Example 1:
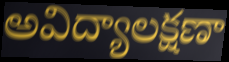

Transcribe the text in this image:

అవిద్యాలక్షణా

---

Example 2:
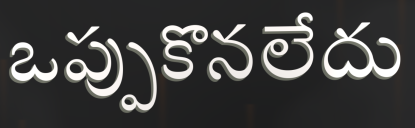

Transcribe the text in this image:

ఒప్పుకొనలేదు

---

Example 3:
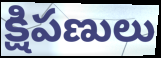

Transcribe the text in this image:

క్షిపణులు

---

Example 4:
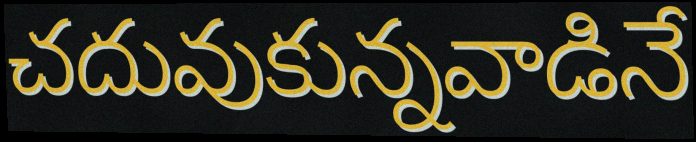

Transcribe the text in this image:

చదువుకున్నవాడినే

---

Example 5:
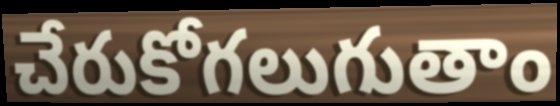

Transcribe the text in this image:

చేరుకోగలుగుతాం